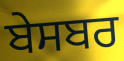
ਬੇਸਬਰ